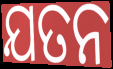
ଯତନ